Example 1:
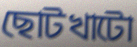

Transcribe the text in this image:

ছোটখাটো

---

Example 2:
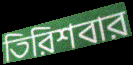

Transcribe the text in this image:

তিরিশবার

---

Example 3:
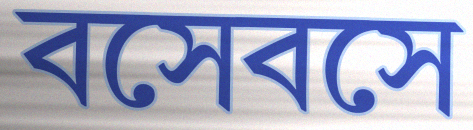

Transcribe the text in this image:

বসেবসে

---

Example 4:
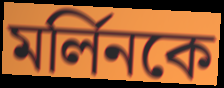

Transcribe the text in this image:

মর্লিনকে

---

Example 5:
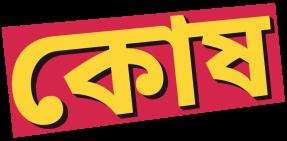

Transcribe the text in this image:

কোষ